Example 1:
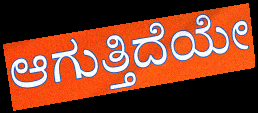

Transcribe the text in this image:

ಆಗುತ್ತಿದೆಯೇ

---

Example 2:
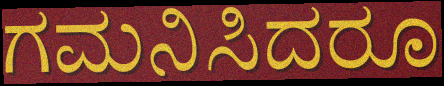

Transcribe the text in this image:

ಗಮನಿಸಿದರೂ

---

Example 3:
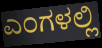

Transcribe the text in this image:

ಎಂಗಳಲ್ಲಿ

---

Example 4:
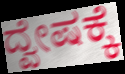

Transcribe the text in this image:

ದ್ವೇಷಕ್ಕೆ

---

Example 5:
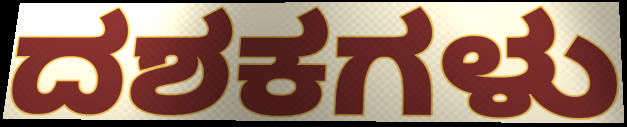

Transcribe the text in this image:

ದಶಕಗಳು